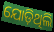
ଯୋଡ଼ିଥିଲି